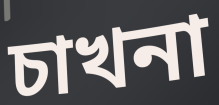
চাখনা